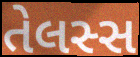
તેલસ્સ